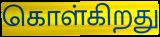
கொள்கிறது